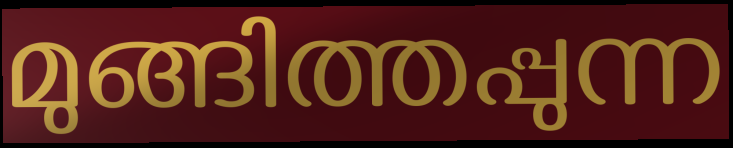
മുങ്ങിത്തപ്പുന്ന